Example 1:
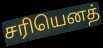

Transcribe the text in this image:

சரியெனத்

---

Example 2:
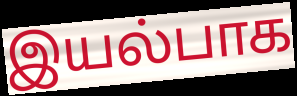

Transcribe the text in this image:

இயல்பாக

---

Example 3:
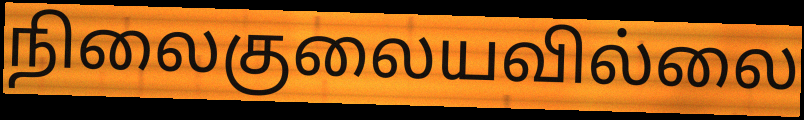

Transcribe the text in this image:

நிலைகுலையவில்லை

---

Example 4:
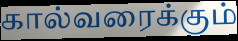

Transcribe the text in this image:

கால்வரைக்கும்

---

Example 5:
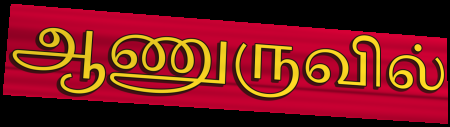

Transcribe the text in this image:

ஆணுருவில்